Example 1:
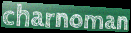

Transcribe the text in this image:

charnoman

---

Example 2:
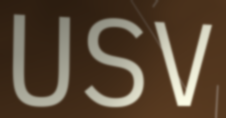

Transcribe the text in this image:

USV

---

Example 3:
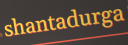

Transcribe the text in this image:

shantadurga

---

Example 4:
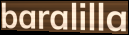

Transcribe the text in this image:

baralilla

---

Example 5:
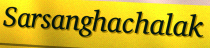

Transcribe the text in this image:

Sarsanghachalak